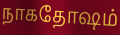
நாகதோஷம்